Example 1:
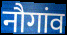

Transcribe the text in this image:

नौगांव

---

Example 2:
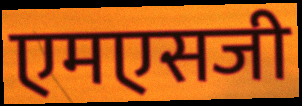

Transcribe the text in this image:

एमएसजी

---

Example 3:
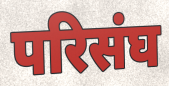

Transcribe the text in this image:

परिसंघ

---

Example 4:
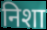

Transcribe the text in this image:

निशा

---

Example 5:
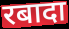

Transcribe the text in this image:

रबादा